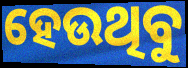
ହେଉଥିବୁ